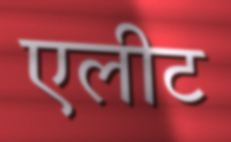
एलीट